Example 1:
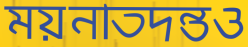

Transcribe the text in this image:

ময়নাতদন্তও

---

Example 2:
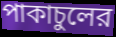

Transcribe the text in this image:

পাকাচুলের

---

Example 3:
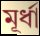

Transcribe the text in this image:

মূর্ধা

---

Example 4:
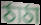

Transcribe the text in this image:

ঠাঠা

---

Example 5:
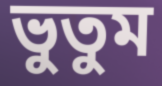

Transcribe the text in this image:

ভুতুম